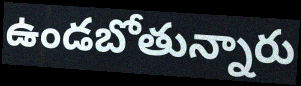
ఉండబోతున్నారు